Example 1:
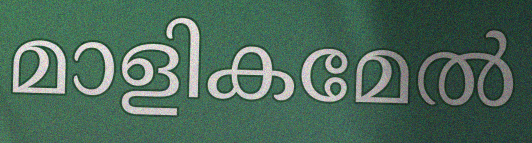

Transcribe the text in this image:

മാളികമേൽ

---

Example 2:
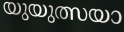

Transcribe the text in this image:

യുയുത്സയാ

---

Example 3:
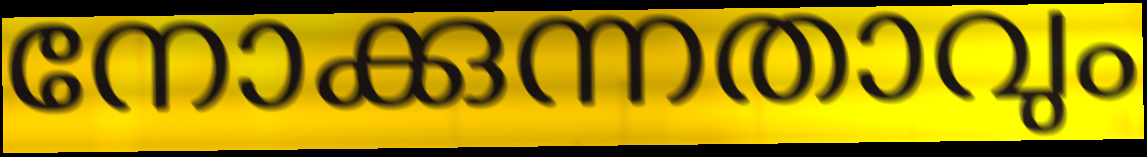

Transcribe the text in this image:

നോക്കുന്നതാവും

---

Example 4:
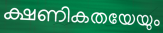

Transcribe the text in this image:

ക്ഷണികതയേയും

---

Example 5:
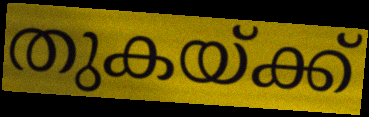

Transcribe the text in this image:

തുകയ്ക്ക്